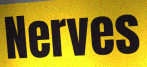
Nerves